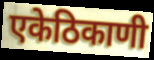
एकेठिकाणी